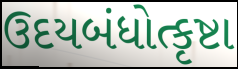
ઉદયબંધોત્કૃષ્ટા